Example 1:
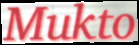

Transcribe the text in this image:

Mukto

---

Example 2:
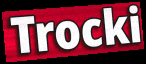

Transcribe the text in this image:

Trocki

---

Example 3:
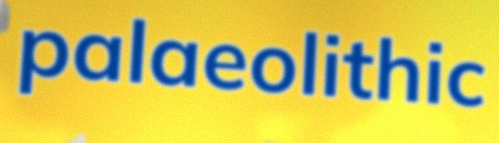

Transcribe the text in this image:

palaeolithic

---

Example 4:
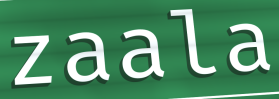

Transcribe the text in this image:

zaala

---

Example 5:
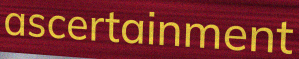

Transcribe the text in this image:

ascertainment